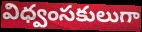
విధ్వంసకులుగా